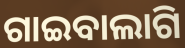
ଗାଇବାଲାଗି